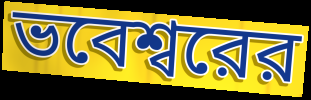
ভবেশ্বরের